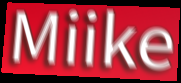
Miike